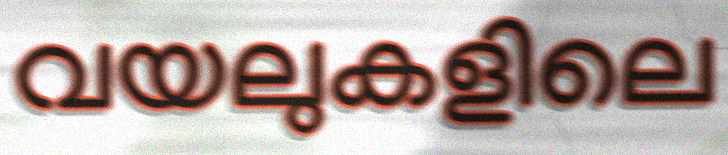
വയലുകളിലെ